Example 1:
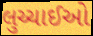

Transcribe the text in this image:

લુચ્ચાઈઓ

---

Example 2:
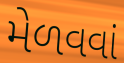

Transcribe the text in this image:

મેળવવાં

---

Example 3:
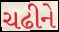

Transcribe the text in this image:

ચઢીને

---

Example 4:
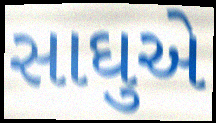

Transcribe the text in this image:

સાઘુએ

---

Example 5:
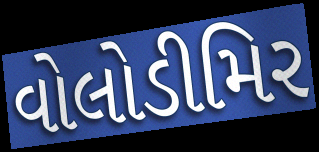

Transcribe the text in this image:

વોલોડીમિર